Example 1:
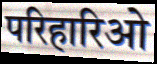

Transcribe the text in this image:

परिहारिओ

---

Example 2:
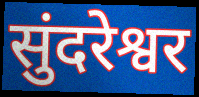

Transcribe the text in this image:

सुंदरेश्वर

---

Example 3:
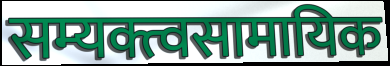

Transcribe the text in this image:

सम्यक्त्वसामायिक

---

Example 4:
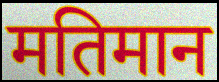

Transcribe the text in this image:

मतिमान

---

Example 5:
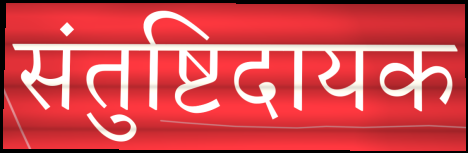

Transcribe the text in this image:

संतुष्टिदायक